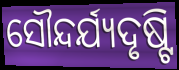
ସୌନ୍ଦର୍ଯ୍ୟଦୃଷ୍ଟି